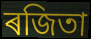
ৰজিতা